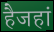
हैजहां